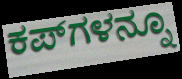
ಕಪ್‌ಗಳನ್ನೂ